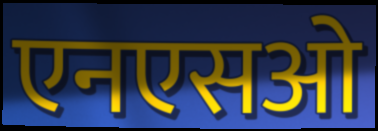
एनएसओ